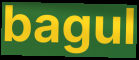
bagul